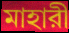
মাহারী